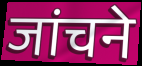
जांचने